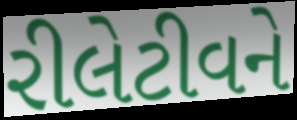
રીલેટીવને